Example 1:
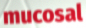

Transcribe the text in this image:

mucosal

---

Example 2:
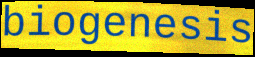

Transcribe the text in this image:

biogenesis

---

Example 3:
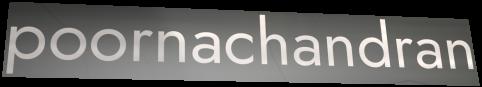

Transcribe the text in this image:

poornachandran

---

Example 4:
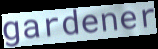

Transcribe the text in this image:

gardener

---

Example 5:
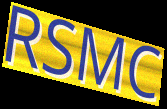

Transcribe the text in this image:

RSMC